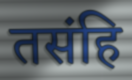
तसंहि